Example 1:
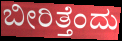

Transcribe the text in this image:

ಬೀರಿತ್ತೆಂದು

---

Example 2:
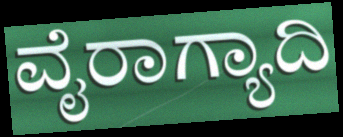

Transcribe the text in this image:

ವೈರಾಗ್ಯಾದಿ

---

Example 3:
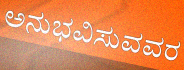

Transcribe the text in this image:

ಅನುಭವಿಸುವವರ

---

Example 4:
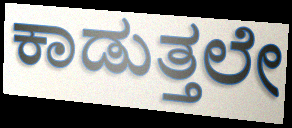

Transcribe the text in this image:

ಕಾಡುತ್ತಲೇ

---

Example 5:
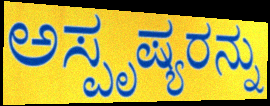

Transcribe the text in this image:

ಅಸ್ಪೃಷ್ಯರನ್ನು